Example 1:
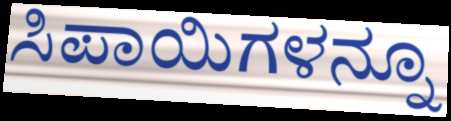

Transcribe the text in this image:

ಸಿಪಾಯಿಗಳನ್ನೂ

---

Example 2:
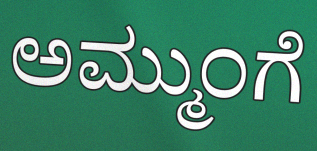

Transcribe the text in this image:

ಅಮ್ಮುಂಗೆ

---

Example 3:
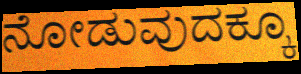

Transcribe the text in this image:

ನೋಡುವುದಕ್ಕೂ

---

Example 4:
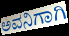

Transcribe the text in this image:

ಅವನಿಗಾಗಿ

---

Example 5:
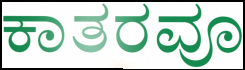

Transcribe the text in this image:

ಕಾತರವೂ